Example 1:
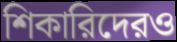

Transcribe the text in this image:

শিকারিদেরও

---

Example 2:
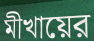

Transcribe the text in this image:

মীখায়ের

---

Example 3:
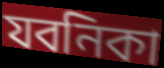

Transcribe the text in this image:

যবনিকা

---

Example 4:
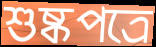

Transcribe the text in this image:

শুষ্কপত্রে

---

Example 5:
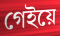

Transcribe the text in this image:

গেইয়ে